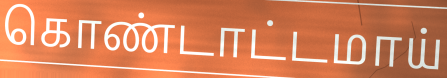
கொண்டாட்டமாய்